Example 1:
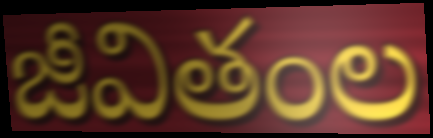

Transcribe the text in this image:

జీవితంల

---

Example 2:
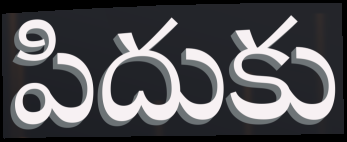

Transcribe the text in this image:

పిదుకు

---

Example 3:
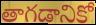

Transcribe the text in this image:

తాగడానికో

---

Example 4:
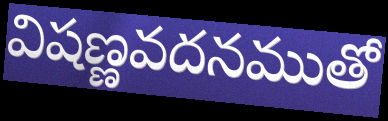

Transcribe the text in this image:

విషణ్ణవదనముతో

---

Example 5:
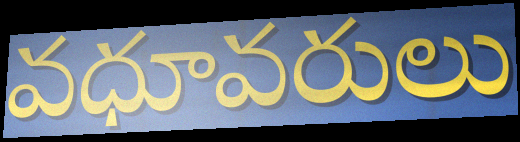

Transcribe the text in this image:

వధూవరులు